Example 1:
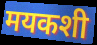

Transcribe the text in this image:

मयकशी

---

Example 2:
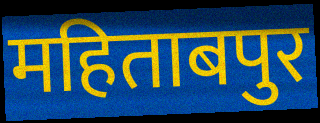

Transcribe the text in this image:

महिताबपुर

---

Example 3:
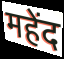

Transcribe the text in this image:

महेंद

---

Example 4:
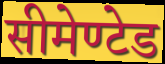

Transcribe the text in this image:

सीमेण्टेड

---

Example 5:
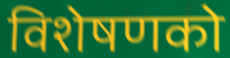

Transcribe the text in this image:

विशेषणको